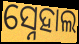
ସ୍ନେହାଲ